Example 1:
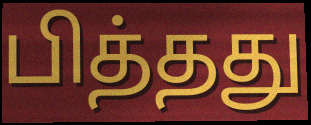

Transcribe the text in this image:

பித்தது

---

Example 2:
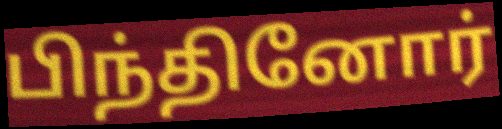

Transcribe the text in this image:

பிந்தினோர்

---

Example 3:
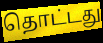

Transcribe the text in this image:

தொட்டது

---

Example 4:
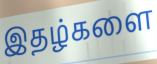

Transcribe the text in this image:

இதழ்களை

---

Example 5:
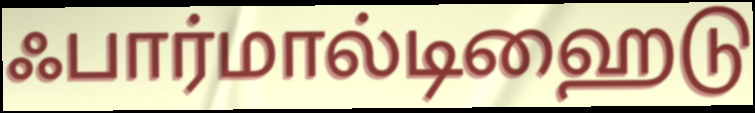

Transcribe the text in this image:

ஃபார்மால்டிஹைடு